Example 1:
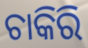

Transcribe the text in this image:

ଚାକିରି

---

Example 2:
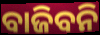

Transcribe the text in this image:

ବାଜିବନି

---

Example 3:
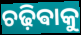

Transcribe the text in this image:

ଚଢ଼ିଵାକୁ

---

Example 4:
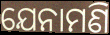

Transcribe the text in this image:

ଯେନାମଣି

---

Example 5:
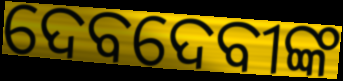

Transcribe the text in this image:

ଦେବଦେବୀଙ୍କ